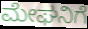
ಮೇಘನಿಗೆ